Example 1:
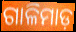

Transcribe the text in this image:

ଗାଳିମାଡ଼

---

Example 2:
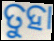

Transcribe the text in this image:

ତୁହା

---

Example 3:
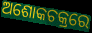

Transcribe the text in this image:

ଅଶୋକଚକ୍ରରେ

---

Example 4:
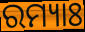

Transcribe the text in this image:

ରମ୍ୟାଃ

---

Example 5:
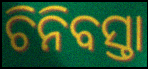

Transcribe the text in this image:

ଚିନିବସ୍ତା